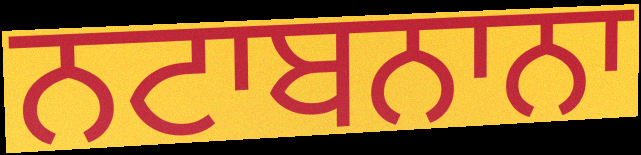
ਨਟਾਬਨਾਨਾ